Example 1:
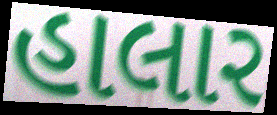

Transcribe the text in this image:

હાલાર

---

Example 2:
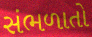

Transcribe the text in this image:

સંભળાતો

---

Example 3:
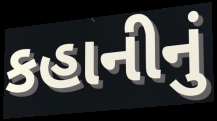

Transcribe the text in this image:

કહાનીનું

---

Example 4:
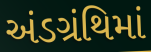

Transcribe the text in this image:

અંડગ્રંથિમાં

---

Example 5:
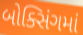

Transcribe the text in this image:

બોક્સિંગમાં